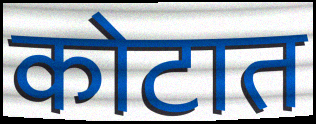
कोटात